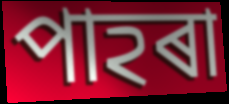
পাহৰা